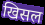
खिसल